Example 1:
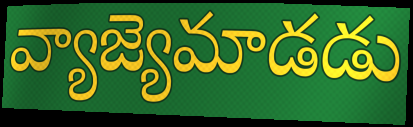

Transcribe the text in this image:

వ్యాజ్యెమాడడు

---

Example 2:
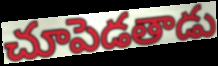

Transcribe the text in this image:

చూపెడతాడు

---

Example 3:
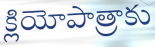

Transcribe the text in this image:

క్లియోపాత్రాకు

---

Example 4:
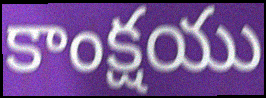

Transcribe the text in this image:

కాంక్షయు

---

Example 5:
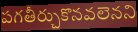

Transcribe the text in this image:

పగతీర్చుకొనవలెనని